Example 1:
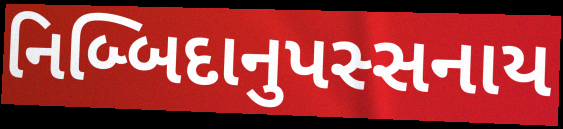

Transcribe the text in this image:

નિબ્બિદાનુપસ્સનાય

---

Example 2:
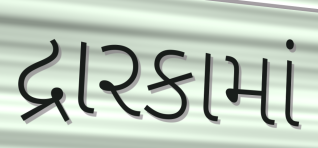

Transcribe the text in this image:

દ્રારકામાં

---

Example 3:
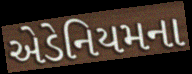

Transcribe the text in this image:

એડેનિયમના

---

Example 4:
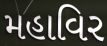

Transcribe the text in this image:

મહાવિર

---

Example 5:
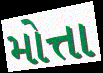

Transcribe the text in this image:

મોત્તા